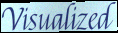
Visualized